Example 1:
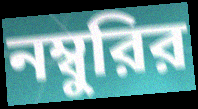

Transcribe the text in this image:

নম্বুরির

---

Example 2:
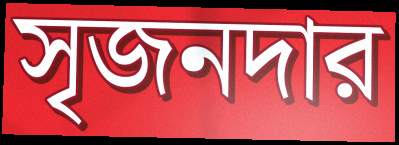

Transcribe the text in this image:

সৃজনদার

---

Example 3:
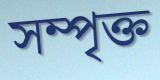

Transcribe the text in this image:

সম্পৃক্ত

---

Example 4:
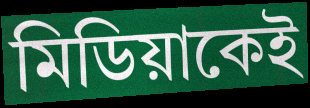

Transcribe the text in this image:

মিডিয়াকেই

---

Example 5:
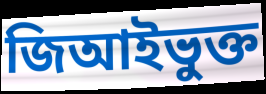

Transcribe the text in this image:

জিআইভুক্ত